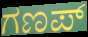
ಗಣಪ್